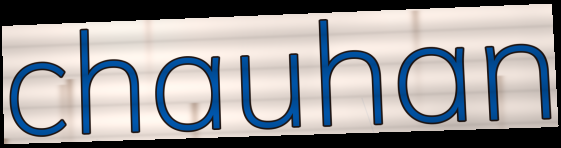
chauhan